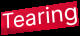
Tearing